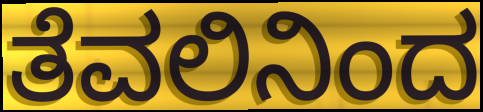
ತೆವಲಿನಿಂದ